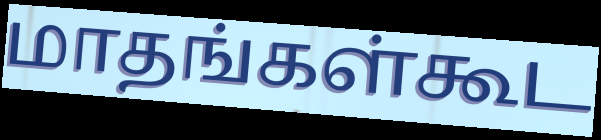
மாதங்கள்கூட